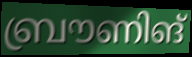
ബ്രൗണിങ്